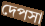
দেপসা